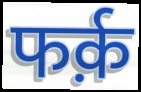
फर्क़